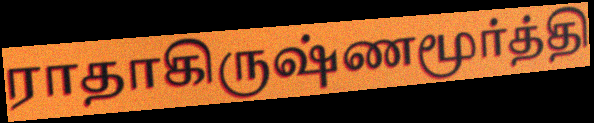
ராதாகிருஷ்ணமூர்த்தி